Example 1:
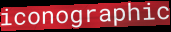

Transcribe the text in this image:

iconographic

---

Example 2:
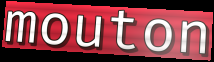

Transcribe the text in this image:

mouton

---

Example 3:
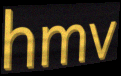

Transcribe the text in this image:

hmv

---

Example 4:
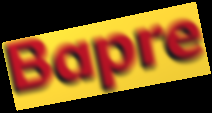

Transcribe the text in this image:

Bapre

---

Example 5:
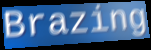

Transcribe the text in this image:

Brazing